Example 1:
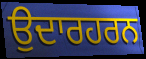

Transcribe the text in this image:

ਉਦਾਰਹਰਨ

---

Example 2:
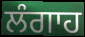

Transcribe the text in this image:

ਲੰਗਾਹ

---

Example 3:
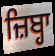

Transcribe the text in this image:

ਜ਼ਿਬ੍ਹਾ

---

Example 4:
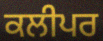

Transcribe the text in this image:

ਕਲੀਪਰ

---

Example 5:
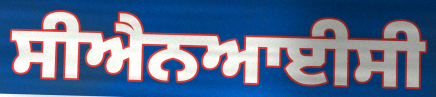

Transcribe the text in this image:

ਸੀਐਨਆਈਸੀ